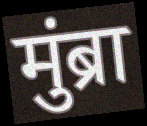
मुंब्रा